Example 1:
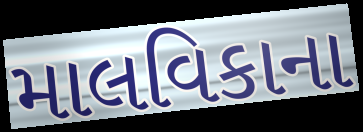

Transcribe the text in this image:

માલવિકાના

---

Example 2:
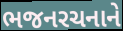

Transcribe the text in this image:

ભજનરચનાને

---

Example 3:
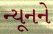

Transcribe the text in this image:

ન્યૂનને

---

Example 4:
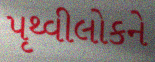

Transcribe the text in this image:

પૃથ્વીલોકને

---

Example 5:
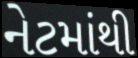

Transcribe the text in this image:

નેટમાંથી